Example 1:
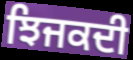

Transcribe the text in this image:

ਝਿਜਕਦੀ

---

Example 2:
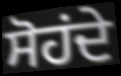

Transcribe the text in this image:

ਸੋਹਂਦੇ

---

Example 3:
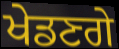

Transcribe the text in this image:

ਖੇਡਣਗੇ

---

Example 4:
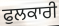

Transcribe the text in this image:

ਫੁਲਕਾਰੀ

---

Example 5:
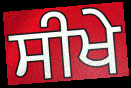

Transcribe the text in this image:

ਸੀਖੇ